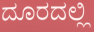
ದೂರದಲ್ಲಿ